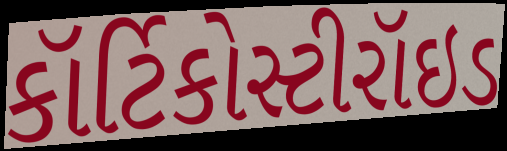
કૉર્ટિકોસ્ટીરૉઇડ